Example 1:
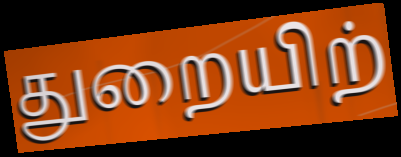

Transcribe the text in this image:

துறையிற்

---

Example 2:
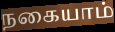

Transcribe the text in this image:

நகையாம்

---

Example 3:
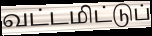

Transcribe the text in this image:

வட்டமிட்டுப்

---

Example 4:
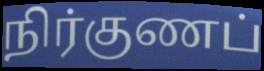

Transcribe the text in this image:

நிர்குணப்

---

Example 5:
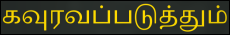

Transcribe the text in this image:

கவுரவப்படுத்தும்